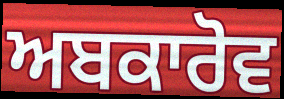
ਅਬਕਾਰੋਵ